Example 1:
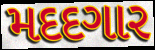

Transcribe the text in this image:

મદદગાર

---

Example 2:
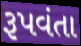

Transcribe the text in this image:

રૂપવંતા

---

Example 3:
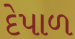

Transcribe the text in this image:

દેપાળ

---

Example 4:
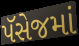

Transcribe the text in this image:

પૅસેજમાં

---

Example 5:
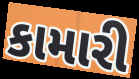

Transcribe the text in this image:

કામારી